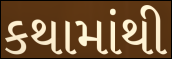
કથામાંથી